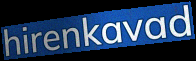
hirenkavad